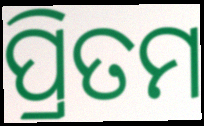
ପ୍ରିତମ